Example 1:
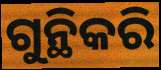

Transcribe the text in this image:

ଗୁନ୍ଥିକରି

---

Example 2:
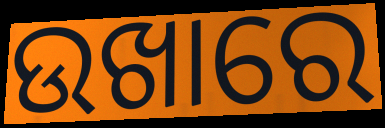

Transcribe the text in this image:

ଉଖାରେ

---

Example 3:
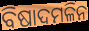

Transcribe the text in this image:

ବିଷାଦମଳିନ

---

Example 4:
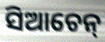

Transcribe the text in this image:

ସିଆଚେନ୍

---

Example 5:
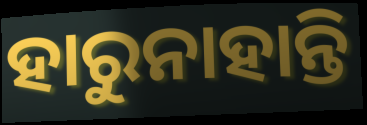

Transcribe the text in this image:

ହାରୁନାହାନ୍ତି